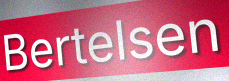
Bertelsen